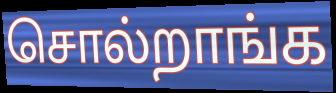
சொல்றாங்க